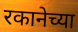
रकानेच्या